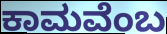
ಕಾಮವೆಂಬ